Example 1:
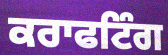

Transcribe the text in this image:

ਕਰਾਫਟਿੰਗ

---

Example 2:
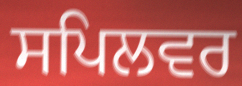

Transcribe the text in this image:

ਸਪਿਲਵਰ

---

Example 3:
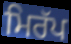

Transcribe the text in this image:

ਮਿਰੱਪ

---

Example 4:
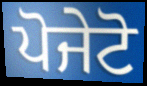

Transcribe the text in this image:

ਪੋਜੇਟੋ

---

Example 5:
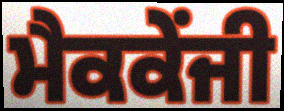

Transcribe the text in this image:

ਮੈਕਕੇਂਜੀ